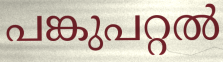
പങ്കുപറ്റൽ